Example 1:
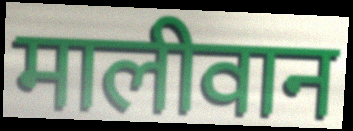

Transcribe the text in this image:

मालीवान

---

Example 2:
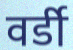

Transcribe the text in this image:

वर्डी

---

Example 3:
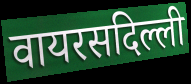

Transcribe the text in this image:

वायरसदिल्ली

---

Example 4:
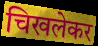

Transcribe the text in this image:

चिखलेकर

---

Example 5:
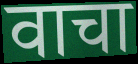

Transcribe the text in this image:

वाचा